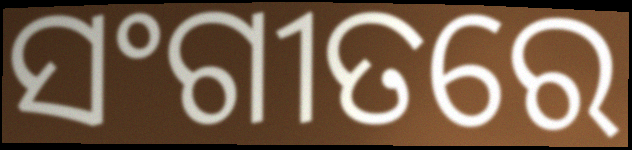
ସଂଗୀତରେ